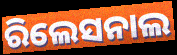
ରିଲେସନାଲ